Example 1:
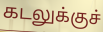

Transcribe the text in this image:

கடலுக்குச்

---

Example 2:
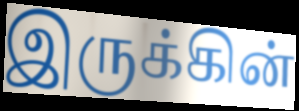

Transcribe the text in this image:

இருக்கின்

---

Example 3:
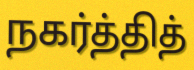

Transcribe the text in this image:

நகர்த்தித்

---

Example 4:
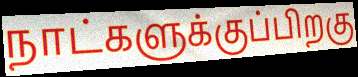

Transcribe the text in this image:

நாட்களுக்குப்பிறகு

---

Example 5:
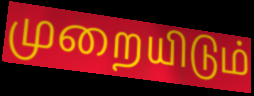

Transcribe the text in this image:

முறையிடும்